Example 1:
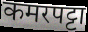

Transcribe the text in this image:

कमरपट्टा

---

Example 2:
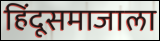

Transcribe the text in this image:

हिंदूसमाजाला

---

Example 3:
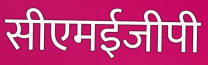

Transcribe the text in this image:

सीएमईजीपी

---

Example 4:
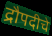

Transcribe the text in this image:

द्रौपदीचे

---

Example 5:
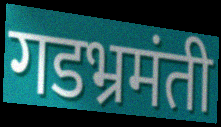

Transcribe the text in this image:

गडभ्रमंती